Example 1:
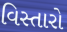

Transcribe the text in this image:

વિસ્તારો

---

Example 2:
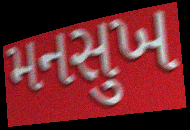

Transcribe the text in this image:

મનસુખ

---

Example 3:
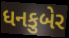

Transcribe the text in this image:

ધનકુબેર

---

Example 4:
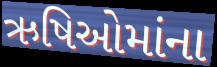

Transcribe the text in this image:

ઋષિઓમાંના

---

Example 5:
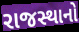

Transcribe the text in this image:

રાજસ્થાનો